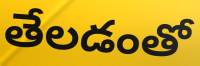
తేలడంతో